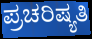
ಪ್ರಚರಿಷ್ಯತಿ